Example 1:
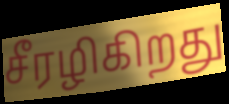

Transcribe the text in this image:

சீரழிகிறது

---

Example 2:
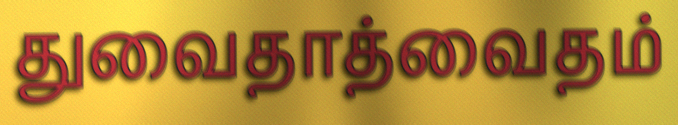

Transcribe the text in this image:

துவைதாத்வைதம்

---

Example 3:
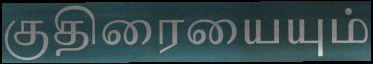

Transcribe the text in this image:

குதிரையையும்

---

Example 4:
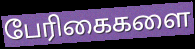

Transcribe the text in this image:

பேரிகைகளை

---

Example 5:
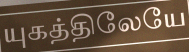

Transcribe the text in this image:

யுகத்திலேயே